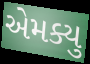
એમક્યુ